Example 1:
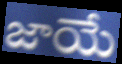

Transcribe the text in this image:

జాయే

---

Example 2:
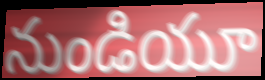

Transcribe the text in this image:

నుండియూ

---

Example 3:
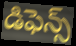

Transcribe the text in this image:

డిఫెన్స్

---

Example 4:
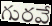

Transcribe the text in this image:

గురవే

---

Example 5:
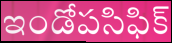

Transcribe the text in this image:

ఇండోపసిఫిక్